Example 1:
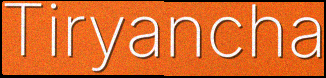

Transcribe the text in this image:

Tiryancha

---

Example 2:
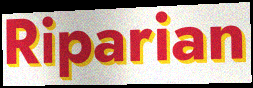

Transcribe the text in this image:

Riparian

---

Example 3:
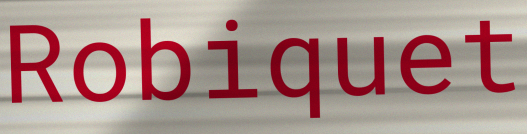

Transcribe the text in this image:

Robiquet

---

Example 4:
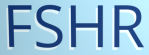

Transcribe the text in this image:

FSHR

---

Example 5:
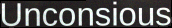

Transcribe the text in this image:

Unconsious